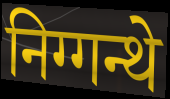
निग्गन्थे